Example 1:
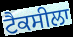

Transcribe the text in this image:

ਟੈਕਸੀਲਾ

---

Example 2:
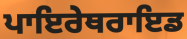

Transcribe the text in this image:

ਪਾਇਰੇਥਰਾਇਡ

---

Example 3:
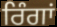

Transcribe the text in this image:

ਰਿੰਗਾਂ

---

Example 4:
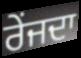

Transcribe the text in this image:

ਰੇਂਜਦਾ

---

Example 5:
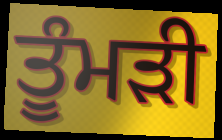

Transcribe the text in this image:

ਤੂੰਮੜੀ